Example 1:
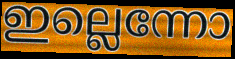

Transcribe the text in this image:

ഇല്ലെന്നോ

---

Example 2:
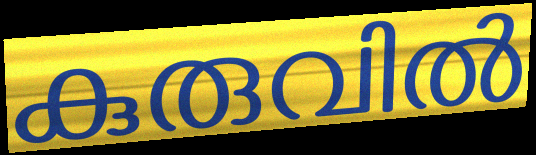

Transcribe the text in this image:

കുരുവിൽ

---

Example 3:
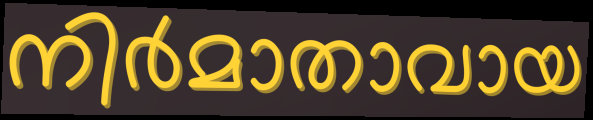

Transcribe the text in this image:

നിർമാതാവായ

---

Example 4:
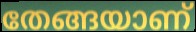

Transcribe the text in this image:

തേങ്ങയാണ്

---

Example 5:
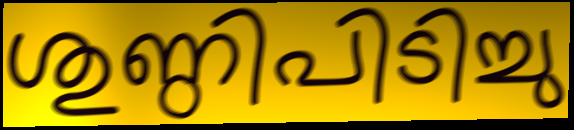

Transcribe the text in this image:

ശുണ്ഠിപിടിച്ചു